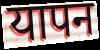
यापन